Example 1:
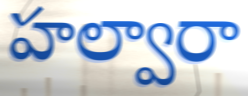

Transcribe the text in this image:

హల్వారా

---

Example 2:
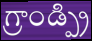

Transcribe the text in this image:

గ్రాండ్ప్రి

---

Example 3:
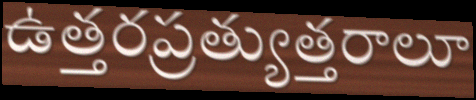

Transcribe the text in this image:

ఉత్తరప్రత్యుత్తరాలూ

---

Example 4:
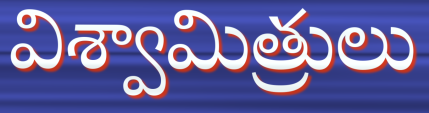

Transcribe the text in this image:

విశ్వామిత్రులు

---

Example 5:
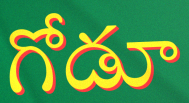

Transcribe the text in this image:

గోడూ